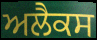
ਅਲੈਕਸ